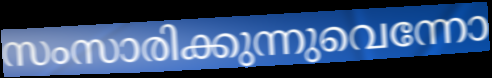
സംസാരിക്കുന്നുവെന്നോ